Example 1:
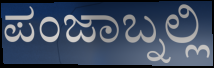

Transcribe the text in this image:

ಪಂಜಾಬ್ನಲ್ಲಿ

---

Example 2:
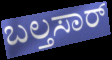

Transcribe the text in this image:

ಬಲ್ತಸಾರ್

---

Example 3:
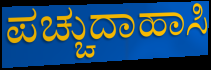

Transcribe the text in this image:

ಪಚ್ಚುದಾಹಾಸಿ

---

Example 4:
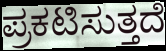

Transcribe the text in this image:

ಪ್ರಕಟಿಸುತ್ತದೆ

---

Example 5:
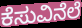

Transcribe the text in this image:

ಕೆಸುವಿನೆಲೆ